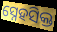
ସ୍ନେହସିକ୍ତ